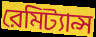
রেমিট্যান্স